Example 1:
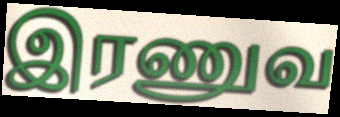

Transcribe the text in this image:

இரணுவ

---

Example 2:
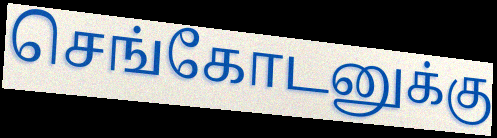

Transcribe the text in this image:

செங்கோடனுக்கு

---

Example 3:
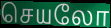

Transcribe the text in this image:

செயலோ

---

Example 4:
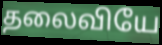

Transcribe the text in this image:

தலைவியே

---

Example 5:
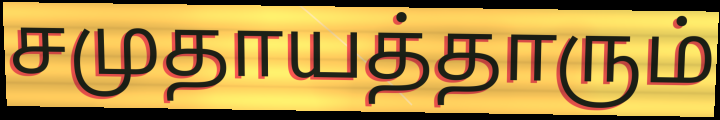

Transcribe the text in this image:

சமுதாயத்தாரும்